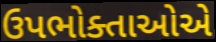
ઉપભોક્તાઓએ